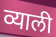
व्याली